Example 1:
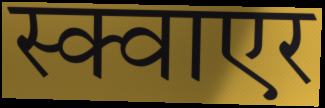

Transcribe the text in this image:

स्क्वाएर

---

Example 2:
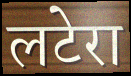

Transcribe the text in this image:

लटेरा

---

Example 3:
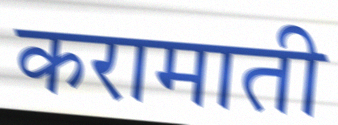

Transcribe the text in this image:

करामाती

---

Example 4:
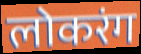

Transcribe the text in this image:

लोकरंग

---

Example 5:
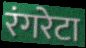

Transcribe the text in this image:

रंगरेटा